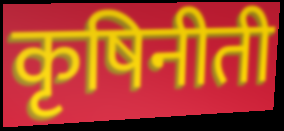
कृषिनीती